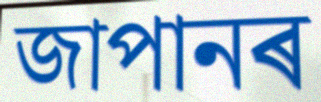
জাপানৰ